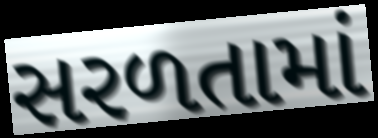
સરળતામાં